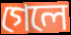
গেলে